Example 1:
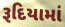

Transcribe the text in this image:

રૂદિયામાં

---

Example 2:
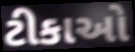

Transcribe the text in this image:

ટીકાઓ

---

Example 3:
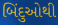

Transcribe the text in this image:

બિંદુઓથી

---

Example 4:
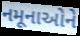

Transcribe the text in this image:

નમૂનાઓને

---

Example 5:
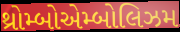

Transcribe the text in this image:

થ્રોમ્બોએમ્બોલિઝમ